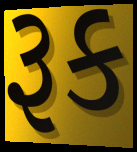
રૂક